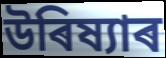
উৰিষ্যাৰ